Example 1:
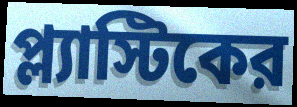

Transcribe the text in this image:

প্ল্যাস্টিকের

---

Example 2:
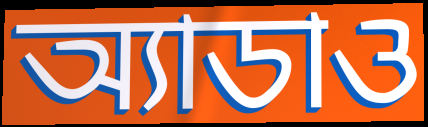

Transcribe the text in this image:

অ্যাডাও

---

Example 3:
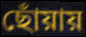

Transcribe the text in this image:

ছোঁয়ায়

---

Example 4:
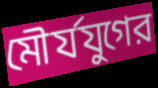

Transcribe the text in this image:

মৌর্যযুগের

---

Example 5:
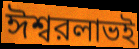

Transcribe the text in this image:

ঈশ্বরলাভই